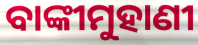
ବାଙ୍କୀମୁହାଣୀ